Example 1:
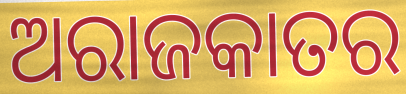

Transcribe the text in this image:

ଅରାଜକାତର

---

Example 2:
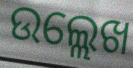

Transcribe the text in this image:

ଉଲ୍ଲେଖ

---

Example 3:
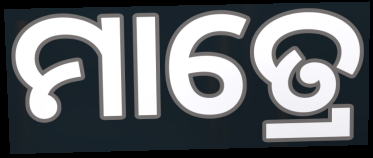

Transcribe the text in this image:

ମାତ୍ରେ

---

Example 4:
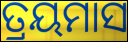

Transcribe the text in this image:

ତ୍ରୟମାସ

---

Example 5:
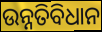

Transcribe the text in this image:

ଉନ୍ନତିବିଧାନ